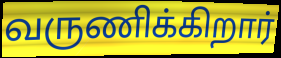
வருணிக்கிறார்